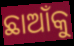
ଛାଆଁକୁ